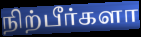
நிற்பீர்களா